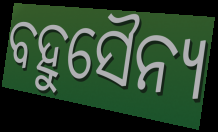
ବହୁସୈନ୍ୟ